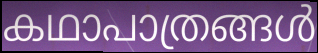
കഥാപാത്രങ്ങൾ